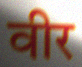
वीर